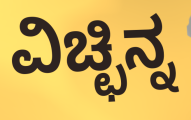
ವಿಚ್ಛಿನ್ನ